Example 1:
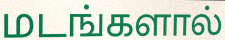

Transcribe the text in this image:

மடங்களால்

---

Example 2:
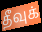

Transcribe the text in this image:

தீவுக்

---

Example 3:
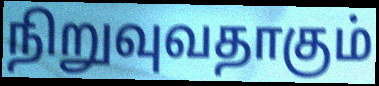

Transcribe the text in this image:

நிறுவுவதாகும்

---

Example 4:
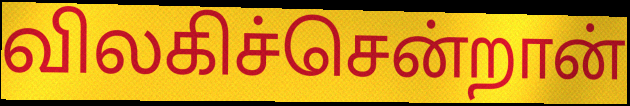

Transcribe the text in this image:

விலகிச்சென்றான்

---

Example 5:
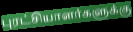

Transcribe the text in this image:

புரட்சியாளர்களுக்கு